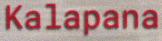
Kalapana